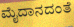
ಮೈದಾನದಂತೆ